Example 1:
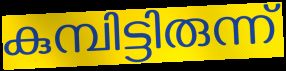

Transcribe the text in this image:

കുമ്പിട്ടിരുന്ന്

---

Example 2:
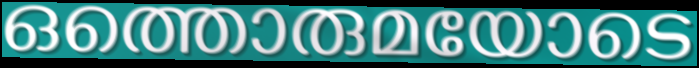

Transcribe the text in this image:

ഒത്തൊരുമയോടെ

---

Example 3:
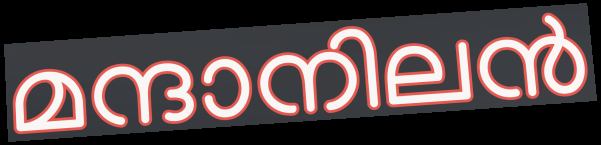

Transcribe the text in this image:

മന്ദാനിലൻ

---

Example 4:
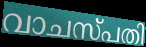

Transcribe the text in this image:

വാചസ്പതി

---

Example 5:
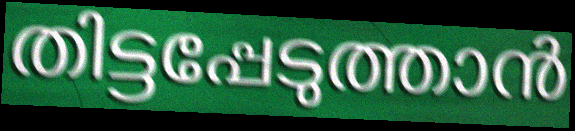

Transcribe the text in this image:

തിട്ടപ്പേടുത്താൻ